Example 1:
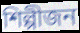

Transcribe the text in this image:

শিল্পীজন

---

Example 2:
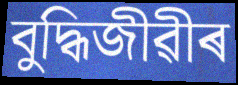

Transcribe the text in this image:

বুদ্ধিজীৱীৰ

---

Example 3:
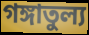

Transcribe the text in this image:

গঙ্গাতুল্য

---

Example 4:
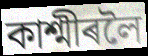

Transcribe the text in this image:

কাশ্মীৰলৈ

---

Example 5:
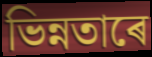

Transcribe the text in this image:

ভিন্নতাৰে